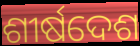
ଶୀର୍ଷଦେଶ